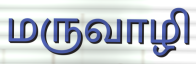
மருவாழி